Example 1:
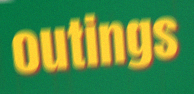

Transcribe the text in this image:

outings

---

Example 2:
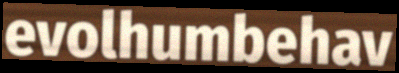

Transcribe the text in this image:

evolhumbehav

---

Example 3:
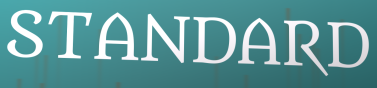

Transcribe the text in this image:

STANDARD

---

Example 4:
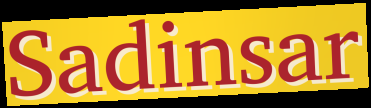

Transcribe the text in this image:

Sadinsar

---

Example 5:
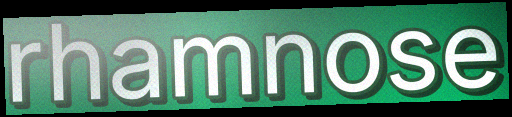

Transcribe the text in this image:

rhamnose